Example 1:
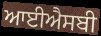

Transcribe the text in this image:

ਆਈਐਸਬੀ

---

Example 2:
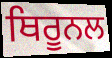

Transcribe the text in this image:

ਥਿਰੂਨਲ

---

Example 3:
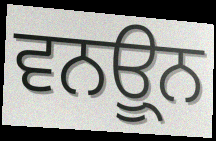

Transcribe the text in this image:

ਵਨਊ੍ਨ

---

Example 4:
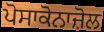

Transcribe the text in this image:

ਪੋਸਾਕੋਨਾਜ਼ੋਲ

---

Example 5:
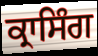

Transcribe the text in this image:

ਕ੍ਰਾਸਿੰਗ